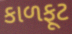
કાળફૂટ